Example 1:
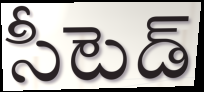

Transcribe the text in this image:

సీటెడ్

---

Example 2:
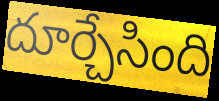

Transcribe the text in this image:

దూర్చేసింది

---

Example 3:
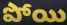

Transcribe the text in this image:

పోయి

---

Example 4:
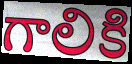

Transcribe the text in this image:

గాలికి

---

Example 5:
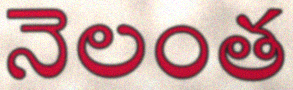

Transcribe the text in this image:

నెలంత